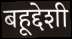
बहूद्देशी